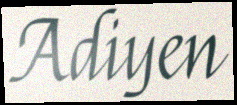
Adiyen